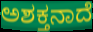
ಅಶಕ್ತನಾದೆ